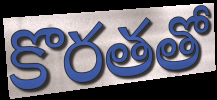
కొరతతో